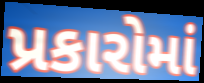
પ્રકારોમાં